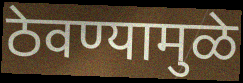
ठेवण्यामुळे